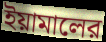
ইয়ামালের